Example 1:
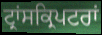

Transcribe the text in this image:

ਟ੍ਰਾਂਸਕ੍ਰਿਪਟਰਾਂ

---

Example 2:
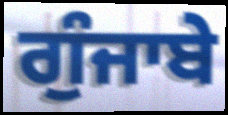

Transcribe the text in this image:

ਗੁੰਜਾਬੇ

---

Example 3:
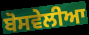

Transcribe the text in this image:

ਬੋਸਵੇਲੀਆ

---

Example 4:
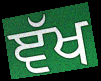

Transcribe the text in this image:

ਞੱਖ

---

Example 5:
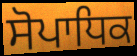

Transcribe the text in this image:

ਸੋਪਾਧਿਕ